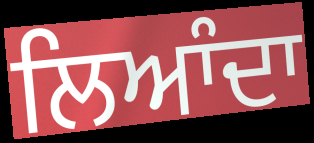
ਲਿਆੰਦਾ